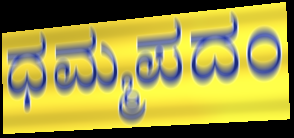
ಧಮ್ಮಪದಂ